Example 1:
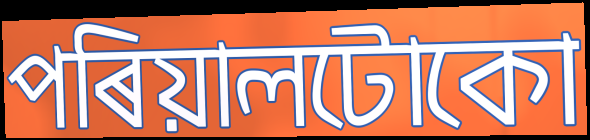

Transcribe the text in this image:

পৰিয়ালটোকো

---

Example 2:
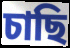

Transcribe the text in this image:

চাছি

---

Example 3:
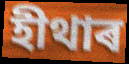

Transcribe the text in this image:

হীথাৰ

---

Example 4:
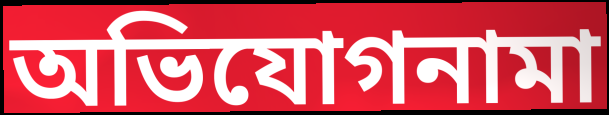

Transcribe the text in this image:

অভিযোগনামা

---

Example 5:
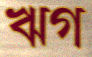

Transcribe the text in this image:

ঋগ